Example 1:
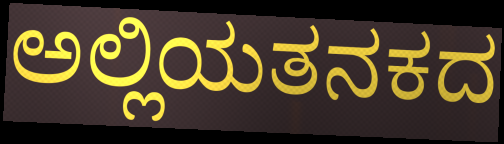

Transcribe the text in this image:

ಅಲ್ಲಿಯತನಕದ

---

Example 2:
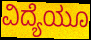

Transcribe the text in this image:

ವಿದ್ಯೆಯೂ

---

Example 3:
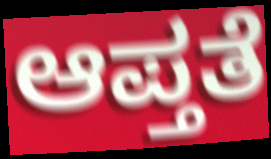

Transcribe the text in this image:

ಆಪ್ತತೆ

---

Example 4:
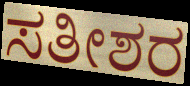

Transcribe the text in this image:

ಸತೀಶರ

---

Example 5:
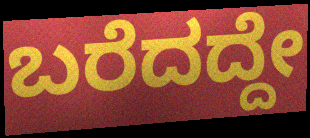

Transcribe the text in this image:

ಬರೆದದ್ದೇ